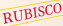
RUBISCO